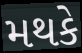
મથકે